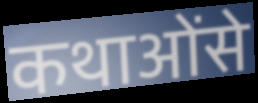
कथाओंसे